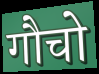
गौचो